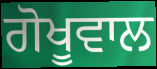
ਗੋਖੂਵਾਲ